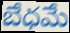
బేధమే